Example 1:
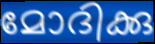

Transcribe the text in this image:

മോദിക്കു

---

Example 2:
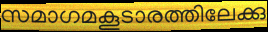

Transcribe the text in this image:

സമാഗമകൂടാരത്തിലേക്കു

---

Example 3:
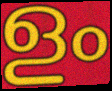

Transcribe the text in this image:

ളം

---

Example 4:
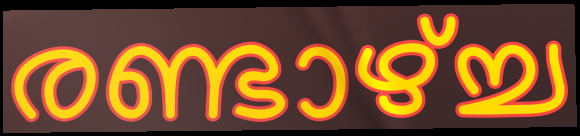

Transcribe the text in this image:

രണ്ടാഴ്ച്ച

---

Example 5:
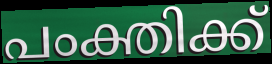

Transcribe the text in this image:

പംക്തിക്ക്